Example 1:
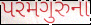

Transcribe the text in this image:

પરમગુરુના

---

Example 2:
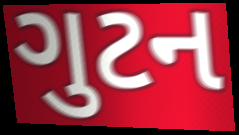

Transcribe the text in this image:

ગુટન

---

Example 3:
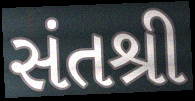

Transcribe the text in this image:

સંતશ્રી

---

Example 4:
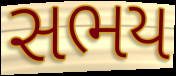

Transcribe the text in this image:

સભય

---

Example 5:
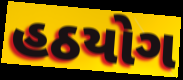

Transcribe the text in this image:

હઠયોગ